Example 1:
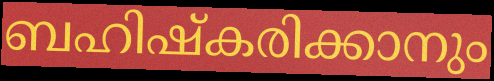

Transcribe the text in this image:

ബഹിഷ്കരിക്കാനും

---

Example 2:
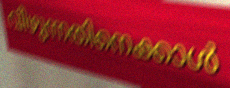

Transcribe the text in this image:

വീഴുന്നതിനെക്കാൾ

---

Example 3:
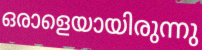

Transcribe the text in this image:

ഒരാളെയായിരുന്നു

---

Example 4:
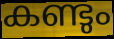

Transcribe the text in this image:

കണ്ടും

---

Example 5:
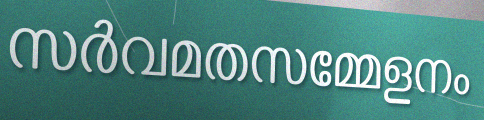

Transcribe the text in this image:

സർവമതസമ്മേളനം